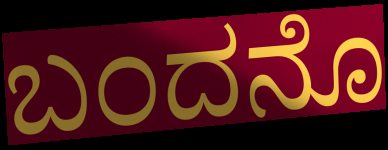
ಬಂದನೊ